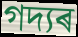
গদ্যৰ